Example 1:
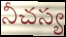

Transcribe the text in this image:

నీచస్య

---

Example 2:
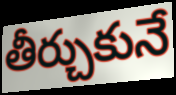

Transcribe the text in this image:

తీర్చుకునే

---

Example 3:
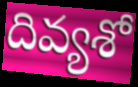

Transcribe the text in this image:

దివ్యశో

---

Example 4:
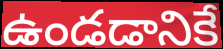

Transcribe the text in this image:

ఉండడానికే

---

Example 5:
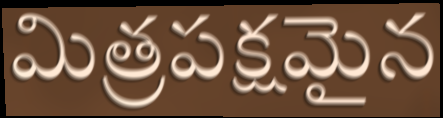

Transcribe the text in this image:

మిత్రపక్షమైన